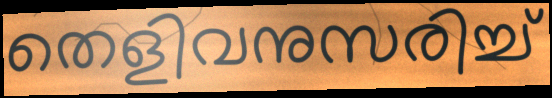
തെളിവനുസരിച്ച്